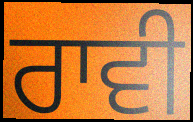
ਰਾਵੀ